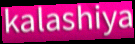
kalashiya